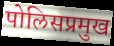
पोलिसप्रमुख